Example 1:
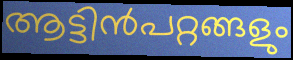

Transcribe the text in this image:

ആട്ടിൻപറ്റങ്ങളും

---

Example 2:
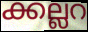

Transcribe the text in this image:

ക്കല്ലറ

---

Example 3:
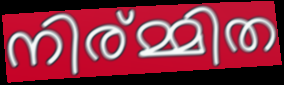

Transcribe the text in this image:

നിര്മ്മിത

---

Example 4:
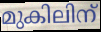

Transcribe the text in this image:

മുകിലിന്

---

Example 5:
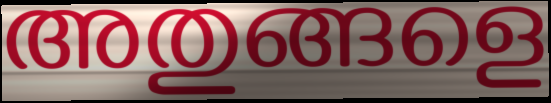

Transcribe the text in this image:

അതുങ്ങളെ